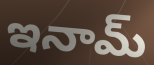
ఇనామ్